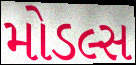
મોડલ્સ